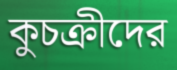
কুচক্রীদের